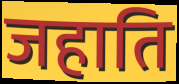
जहाति